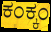
ಕಂಕ್ಕಂ